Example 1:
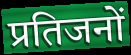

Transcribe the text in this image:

प्रतिजनों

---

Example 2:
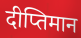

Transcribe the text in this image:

दीप्तिमान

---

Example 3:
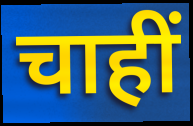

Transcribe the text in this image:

चाहीं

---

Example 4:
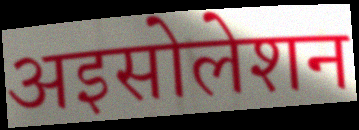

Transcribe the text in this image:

अइसोलेशन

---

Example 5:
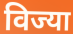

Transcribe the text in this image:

विज्या